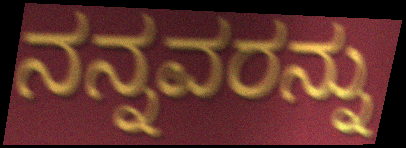
ನನ್ನವರನ್ನು